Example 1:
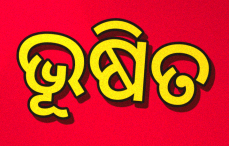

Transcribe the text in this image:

ଭୂଷିତ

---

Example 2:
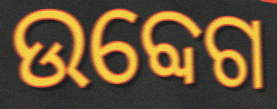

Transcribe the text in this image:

ଉବ୍ଦେଗ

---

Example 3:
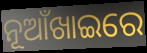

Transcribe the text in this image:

ନୂଆଁଖାଇରେ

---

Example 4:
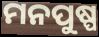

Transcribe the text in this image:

ମନପୁଷ୍ପ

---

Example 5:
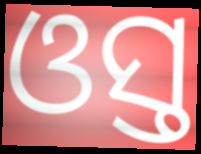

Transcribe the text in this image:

ଓସ୍ତ